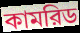
কামরিড